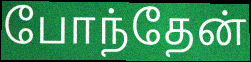
போந்தேன்